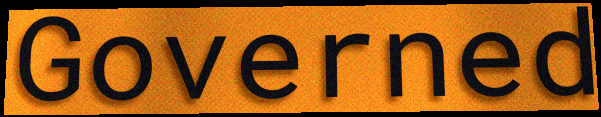
Governed